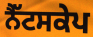
ਨੈੱਟਸਕੇਪ